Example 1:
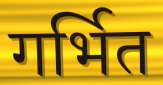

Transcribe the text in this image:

गर्भित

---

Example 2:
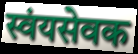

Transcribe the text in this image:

स्वंयसेवक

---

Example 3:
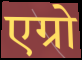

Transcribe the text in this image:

एग्रो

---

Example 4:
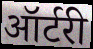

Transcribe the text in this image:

ऑर्टरी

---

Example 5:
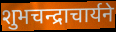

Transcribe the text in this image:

शुभचन्द्राचार्यने